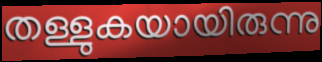
തള്ളുകയായിരുന്നു